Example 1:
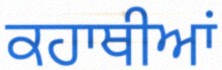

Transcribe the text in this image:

ਕਹਾਥੀਆਂ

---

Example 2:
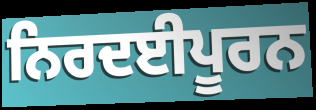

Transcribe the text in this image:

ਨਿਰਦਈਪੂਰਨ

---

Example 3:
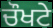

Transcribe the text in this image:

ਚੌਖਟੇ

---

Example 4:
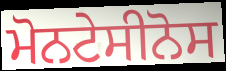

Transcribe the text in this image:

ਮੋਨਟੇਸੀਨੋਸ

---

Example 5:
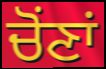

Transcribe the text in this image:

ਚੋਂਣਾਂ